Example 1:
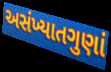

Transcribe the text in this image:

અસંખ્યાતગુણાં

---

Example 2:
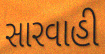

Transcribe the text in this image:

સારવાહી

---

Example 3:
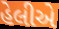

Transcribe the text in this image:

હેલીએ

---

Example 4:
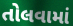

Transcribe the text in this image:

તોલવામાં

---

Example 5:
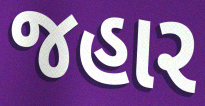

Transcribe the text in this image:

જહાર